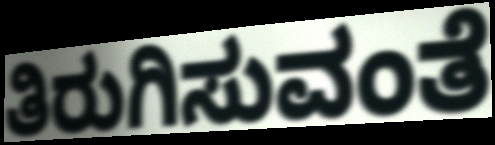
ತಿರುಗಿಸುವಂತೆ